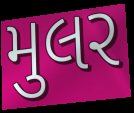
મુલર